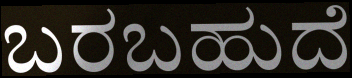
ಬರಬಹುದೆ